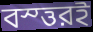
বস্ত্তরই